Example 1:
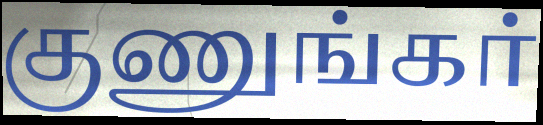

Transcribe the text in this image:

குணுங்கர்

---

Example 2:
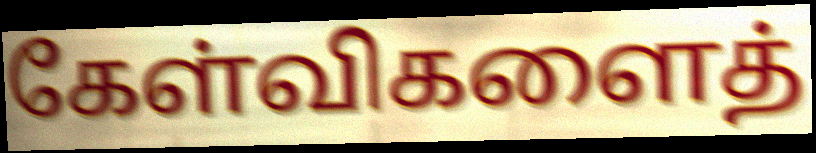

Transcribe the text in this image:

கேள்விகளைத்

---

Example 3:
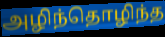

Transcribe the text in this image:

அழிந்தொழிந்த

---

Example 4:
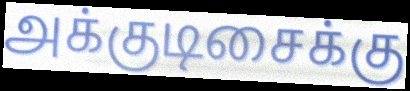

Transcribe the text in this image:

அக்குடிசைக்கு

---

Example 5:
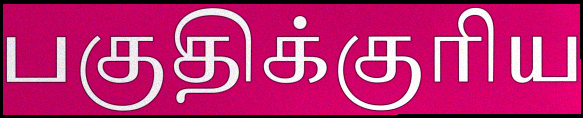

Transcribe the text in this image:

பகுதிக்குரிய